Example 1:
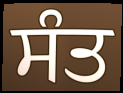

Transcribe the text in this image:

ਸੰਤ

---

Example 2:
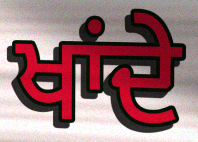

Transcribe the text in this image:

ਖਾਂਦੇ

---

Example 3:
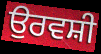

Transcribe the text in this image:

ਉਰਵਸ਼ੀ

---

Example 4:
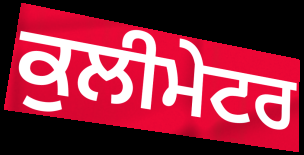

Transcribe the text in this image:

ਕੁਲੀਮੇਟਰ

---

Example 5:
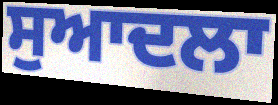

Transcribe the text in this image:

ਸੁਆਦਲਾ